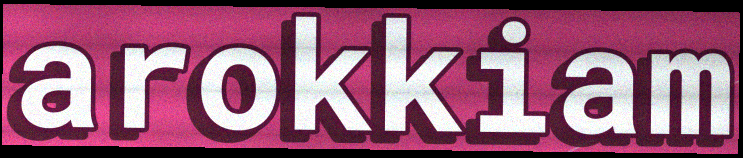
arokkiam